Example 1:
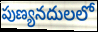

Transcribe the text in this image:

పుణ్యనదులలో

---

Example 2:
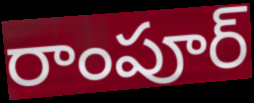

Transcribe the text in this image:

రాంపూర్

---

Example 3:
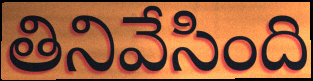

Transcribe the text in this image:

తినివేసింది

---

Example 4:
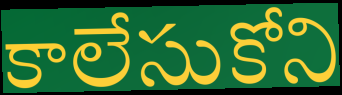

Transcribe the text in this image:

కాలేసుకోని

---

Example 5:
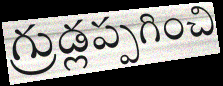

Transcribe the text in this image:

గ్రుడ్లప్పగించి